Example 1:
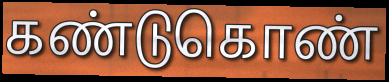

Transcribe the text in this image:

கண்டுகொண்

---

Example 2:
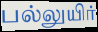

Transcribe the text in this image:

பல்லுயிர்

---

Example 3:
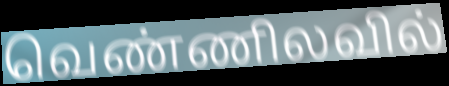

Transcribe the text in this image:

வெண்ணிலவில்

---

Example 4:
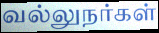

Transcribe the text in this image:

வல்லுநர்கள்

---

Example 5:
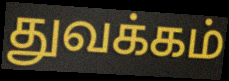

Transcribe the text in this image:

துவக்கம்